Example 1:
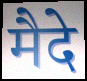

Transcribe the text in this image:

मैदे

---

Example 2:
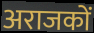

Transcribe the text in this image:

अराजकों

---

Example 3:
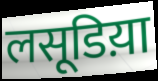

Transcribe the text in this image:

लसूडिय़ा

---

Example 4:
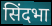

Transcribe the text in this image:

सिंदभा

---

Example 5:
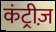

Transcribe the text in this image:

कंट्रीज़